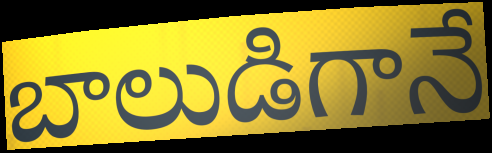
బాలుడిగానే